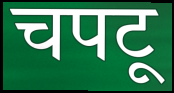
चपटू